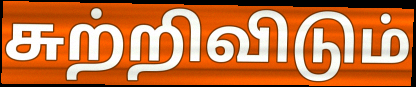
சுற்றிவிடும்